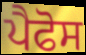
ਪੈਫੋਸ